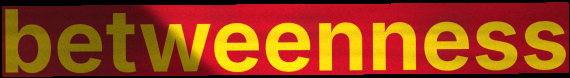
betweenness